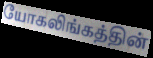
யோகலிங்கத்தின்